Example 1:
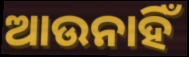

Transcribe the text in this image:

ଆଉନାହିଁ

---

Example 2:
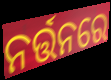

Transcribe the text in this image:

ନର୍ତ୍ତନରେ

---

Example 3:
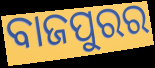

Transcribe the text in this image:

ବାଜପୁରର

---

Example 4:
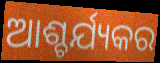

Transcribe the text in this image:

ଆଶ୍ଚର୍ଯ୍ୟକର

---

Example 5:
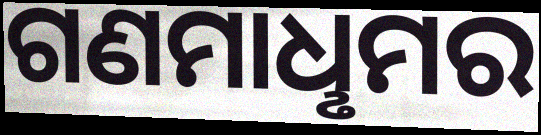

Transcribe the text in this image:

ଗଣମାଧୢମର